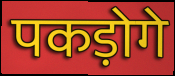
पकड़ोगे